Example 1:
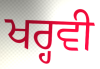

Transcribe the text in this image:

ਖਰ੍ਹਵੀ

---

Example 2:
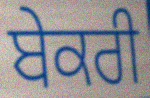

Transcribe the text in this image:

ਬੇਕਰੀ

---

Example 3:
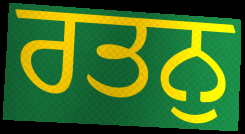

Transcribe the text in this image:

ਰਤਨੁ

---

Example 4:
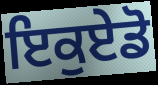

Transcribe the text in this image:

ਇਕੁਏਡੋ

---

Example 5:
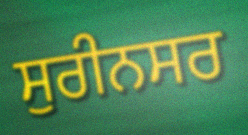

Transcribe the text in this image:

ਸੁਰੀਨਸਰ